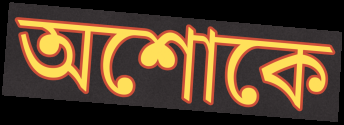
অশোকে